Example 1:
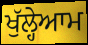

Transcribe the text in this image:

ਖੁੱਲ੍ਹੇਆਮ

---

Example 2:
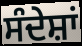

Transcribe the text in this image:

ਸੰਦੇਸ਼ਾਂ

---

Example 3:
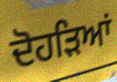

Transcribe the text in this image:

ਦੋਹੜਿਆਂ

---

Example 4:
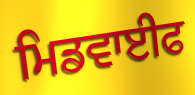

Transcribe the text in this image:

ਮਿਡਵਾਈਫ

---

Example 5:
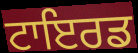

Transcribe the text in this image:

ਟਾਇਰਡ